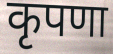
कृपणा